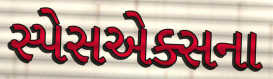
સ્પેસએક્સના